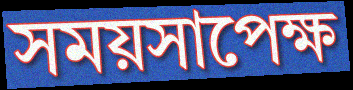
সময়সাপেক্ষ